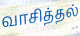
வாசித்தல்